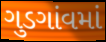
ગુડગાંવમાં